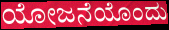
ಯೋಜನೆಯೊಂದು